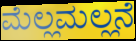
ಮೆಲ್ಲಮಲ್ಲನೆ